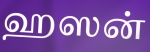
ஹஸன்